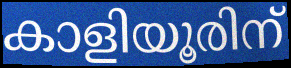
കാളിയൂരിന്